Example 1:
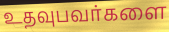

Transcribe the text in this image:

உதவுபவர்களை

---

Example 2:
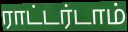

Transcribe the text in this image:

ராட்டர்டாம்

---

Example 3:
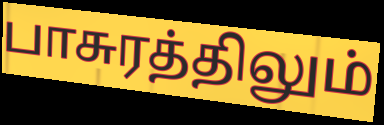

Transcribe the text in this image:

பாசுரத்திலும்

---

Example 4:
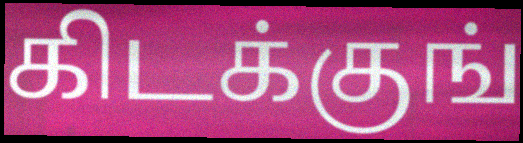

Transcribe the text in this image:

கிடக்குங்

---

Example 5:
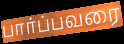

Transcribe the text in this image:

பார்ப்பவரை